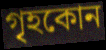
গৃহকোন